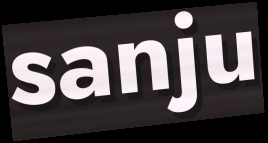
sanju